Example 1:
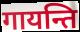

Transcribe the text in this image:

गायन्ति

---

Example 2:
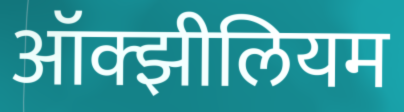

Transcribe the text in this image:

ऑक्झीलियम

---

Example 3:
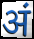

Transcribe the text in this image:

अं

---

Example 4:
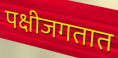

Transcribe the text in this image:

पक्षीजगतात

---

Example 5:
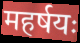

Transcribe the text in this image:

महर्षयः